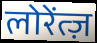
लोरेंत्ज़